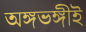
অঙ্গভঙ্গীই